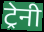
ट्रेनी